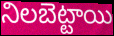
నిలబెట్టాయి